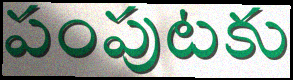
పంపుటకు